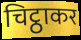
चिट्ठाकर